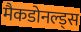
मैकडोनल्ड्स